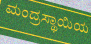
ಮಂದ್ರಸ್ಥಾಯಿಯ